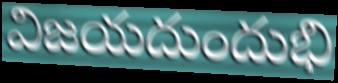
విజయదుందుభి